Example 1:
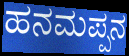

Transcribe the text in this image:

ಹನಮಪ್ಪನ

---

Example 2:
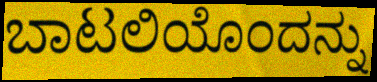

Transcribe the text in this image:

ಬಾಟಲಿಯೊಂದನ್ನು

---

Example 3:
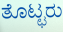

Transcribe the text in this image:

ತೊಟ್ಟರು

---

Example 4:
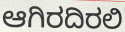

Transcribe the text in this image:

ಆಗಿರದಿರಲಿ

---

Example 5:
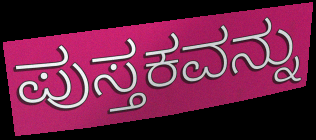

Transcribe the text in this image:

ಪುಸ್ತಕವನ್ನು